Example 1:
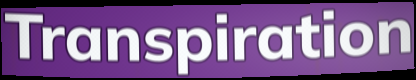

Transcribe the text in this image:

Transpiration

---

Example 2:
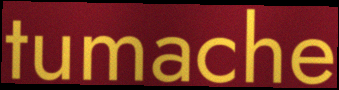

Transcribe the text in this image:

tumache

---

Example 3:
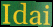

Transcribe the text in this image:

Idai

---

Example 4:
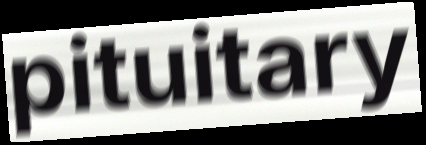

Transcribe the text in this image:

pituitary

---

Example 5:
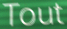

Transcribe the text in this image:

Tout